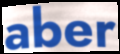
aber